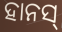
ହାନସ୍